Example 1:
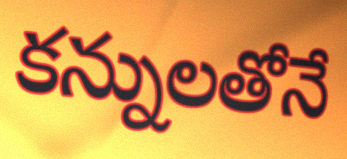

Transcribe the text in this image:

కన్నులతోనే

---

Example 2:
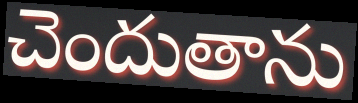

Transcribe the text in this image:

చెందుతాను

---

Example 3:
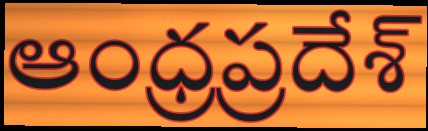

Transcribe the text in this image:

ఆంధ్రప్రదేశ్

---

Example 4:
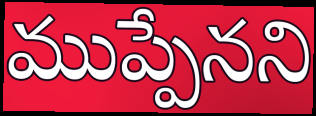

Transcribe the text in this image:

ముప్పేనని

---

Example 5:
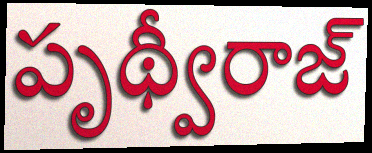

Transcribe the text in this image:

పృథ్వీరాజ్